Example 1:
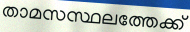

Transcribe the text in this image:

താമസസ്ഥലത്തേക്ക്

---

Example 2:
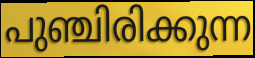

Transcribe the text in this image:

പുഞ്ചിരിക്കുന്ന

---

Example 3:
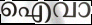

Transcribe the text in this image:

ഐവാ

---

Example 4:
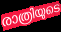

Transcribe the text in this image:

രാത്രിയുടെ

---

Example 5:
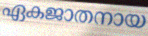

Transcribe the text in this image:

ഏകജാതനായ